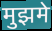
मुझमे